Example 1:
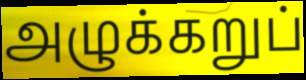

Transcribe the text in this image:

அழுக்கறுப்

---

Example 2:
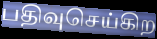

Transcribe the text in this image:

பதிவுசெய்கிற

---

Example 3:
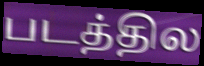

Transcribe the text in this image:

படத்தில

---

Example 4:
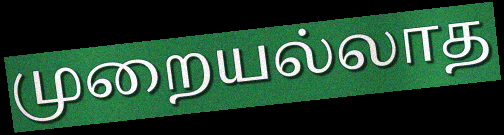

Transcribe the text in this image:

முறையல்லாத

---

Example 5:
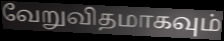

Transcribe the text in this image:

வேறுவிதமாகவும்